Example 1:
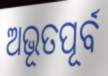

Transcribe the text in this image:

ଅଭୂତପୂର୍ବ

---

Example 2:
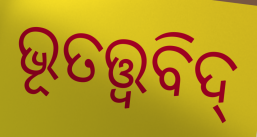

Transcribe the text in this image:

ଭୂତତ୍ତ୍ବବିଦ୍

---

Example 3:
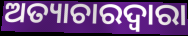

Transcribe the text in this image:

ଅତ୍ୟାଚାରଦ୍ୱାରା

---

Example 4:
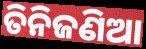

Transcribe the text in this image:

ତିନିଜଣିଆ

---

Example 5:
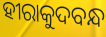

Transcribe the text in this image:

ହୀରାକୁଦବନ୍ଧ